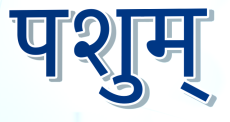
पशुम्